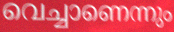
വെച്ചാണെന്നും